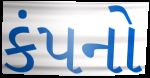
કંપનો